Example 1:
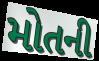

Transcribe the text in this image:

મોતની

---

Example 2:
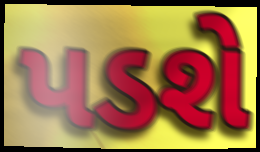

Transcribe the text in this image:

પડશે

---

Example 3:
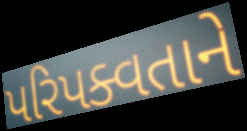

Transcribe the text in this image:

પરિપક્વતાને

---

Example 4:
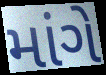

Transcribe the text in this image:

માંગે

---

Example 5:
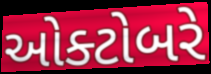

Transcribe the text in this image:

ઓક્ટોબરે